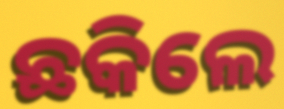
ଛକିଲେ